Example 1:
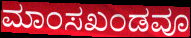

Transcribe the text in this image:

ಮಾಂಸಖಂಡವೂ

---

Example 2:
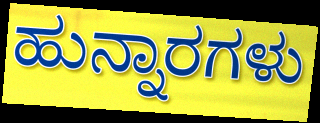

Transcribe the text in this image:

ಹುನ್ನಾರಗಳು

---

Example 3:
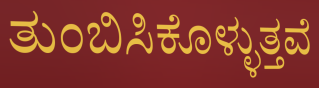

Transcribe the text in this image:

ತುಂಬಿಸಿಕೊಳ್ಳುತ್ತವೆ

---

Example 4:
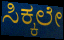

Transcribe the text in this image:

ಸಿಕ್ಕಲೇ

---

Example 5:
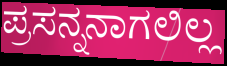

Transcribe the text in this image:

ಪ್ರಸನ್ನನಾಗಲಿಲ್ಲ